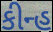
કીન્હ